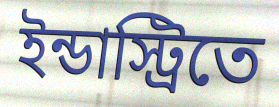
ইন্ডাস্ট্রিতে